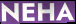
NEHA